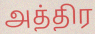
அத்திர